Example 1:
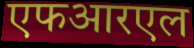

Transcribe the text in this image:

एफआरएल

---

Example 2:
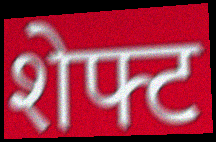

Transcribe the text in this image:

शेफ्ट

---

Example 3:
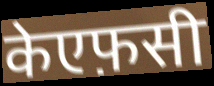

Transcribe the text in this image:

केएफ़सी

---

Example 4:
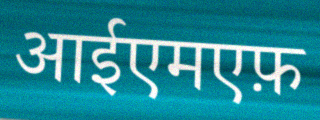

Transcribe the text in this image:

आईएमएफ़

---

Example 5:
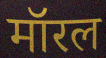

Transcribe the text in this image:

मॉरल